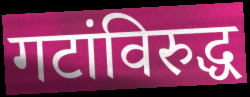
गटांविरुद्ध